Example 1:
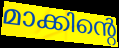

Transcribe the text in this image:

മാക്കിന്റെ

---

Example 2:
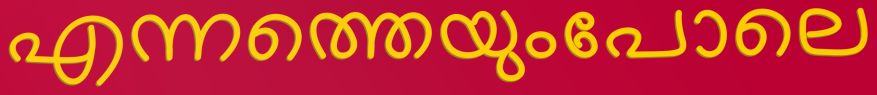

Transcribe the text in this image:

എന്നത്തെയുംപോലെ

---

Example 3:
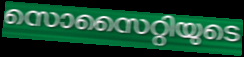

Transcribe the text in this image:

സൊസൈറ്റിയുടെ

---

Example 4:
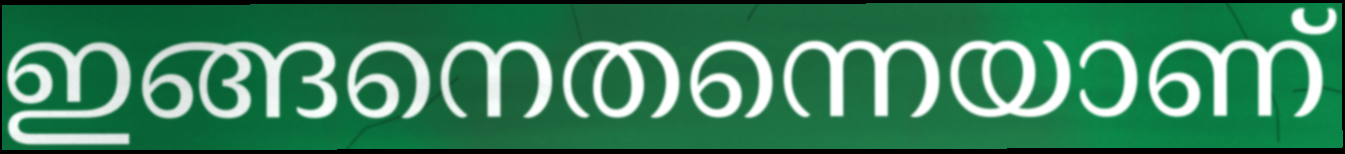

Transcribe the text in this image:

ഇങ്ങനെതന്നെയാണ്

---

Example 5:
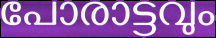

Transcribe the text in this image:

പോരാട്ടവും